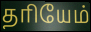
தரியேம்